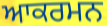
ਆਕਰਮਨ